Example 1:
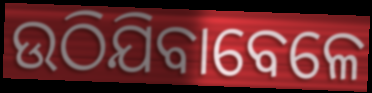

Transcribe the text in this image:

ଉଠିଯିବାବେଳେ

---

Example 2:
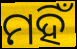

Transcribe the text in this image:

ମହିଁ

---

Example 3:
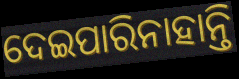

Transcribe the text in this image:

ଦେଇପାରିନାହାନ୍ତି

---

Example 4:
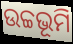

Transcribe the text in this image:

ଉଚ୍ଚଭୂମି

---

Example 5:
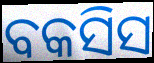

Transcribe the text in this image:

ବକସିସ